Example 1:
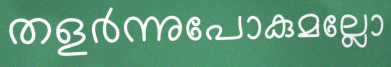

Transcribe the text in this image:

തളർന്നുപോകുമല്ലോ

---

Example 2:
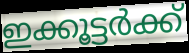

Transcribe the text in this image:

ഇക്കൂട്ടർക്ക്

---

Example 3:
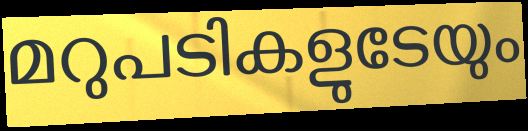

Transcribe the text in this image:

മറുപടികളുടേയും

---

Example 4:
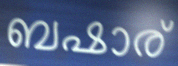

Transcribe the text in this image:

ബഷാര്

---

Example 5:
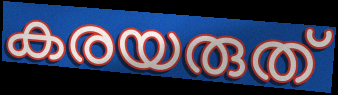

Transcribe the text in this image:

കരയരുത്